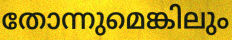
തോന്നുമെങ്കിലും